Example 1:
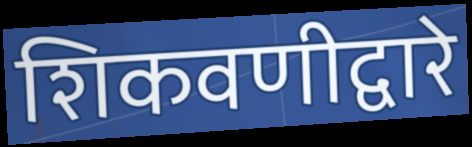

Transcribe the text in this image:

शिकवणीद्वारे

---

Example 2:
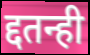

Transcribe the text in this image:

द्दतन्ही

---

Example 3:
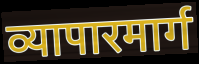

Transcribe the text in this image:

व्यापारमार्ग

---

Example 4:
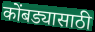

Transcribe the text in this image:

कोंबड्यासाठी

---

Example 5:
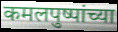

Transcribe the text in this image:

कमलपुष्पांच्या